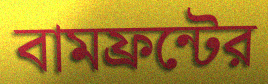
বামফ্রন্টের